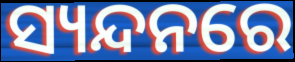
ସ୍ୟନ୍ଦନରେ